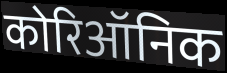
कोरिऑनिक